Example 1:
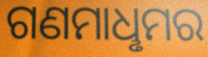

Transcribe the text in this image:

ଗଣମାଧୢମର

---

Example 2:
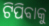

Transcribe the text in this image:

ଟିପିବାକୁ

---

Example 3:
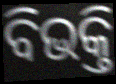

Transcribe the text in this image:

ବିଭକ୍ତି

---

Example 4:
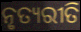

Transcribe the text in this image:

ନୃତ୍ୟରୀତି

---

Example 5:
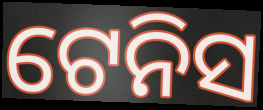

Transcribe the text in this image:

ଟେନିସ